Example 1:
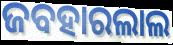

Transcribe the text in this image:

ଜବହାରଲାଲ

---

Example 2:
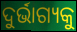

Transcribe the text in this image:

ଦୁର୍ଭାଗ୍ୟକୁ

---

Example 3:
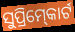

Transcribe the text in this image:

ସୁପ୍ରିମ୍‍କୋର୍ଟ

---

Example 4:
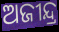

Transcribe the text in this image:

ଅଜୀନ୍ଦ୍ର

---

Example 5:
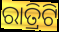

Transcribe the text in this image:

ରାତ୍ରିଟି